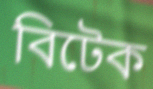
বিটেক